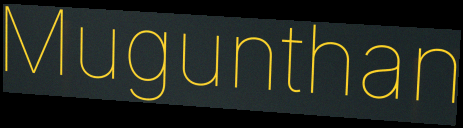
Mugunthan